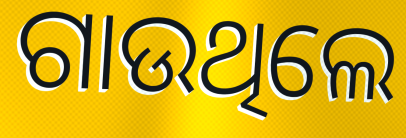
ଗାଉଥିଲେ